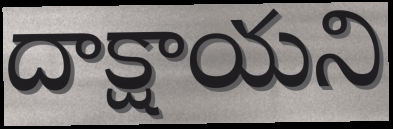
దాక్షాయని